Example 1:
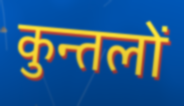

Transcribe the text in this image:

कुन्तलों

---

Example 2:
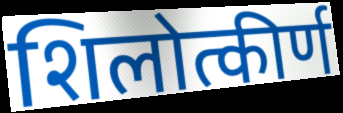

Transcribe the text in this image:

शिलोत्कीर्ण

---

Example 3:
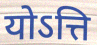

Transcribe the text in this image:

योऽत्ति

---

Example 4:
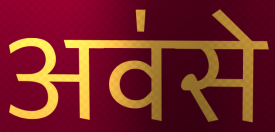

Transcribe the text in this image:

अव॑से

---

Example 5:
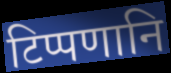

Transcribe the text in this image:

टिप्पणानि